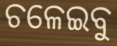
ଚଳେଇବୁ